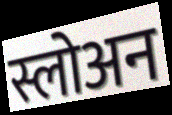
स्लोअन